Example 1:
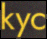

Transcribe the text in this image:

kyc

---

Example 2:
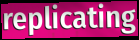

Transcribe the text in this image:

replicating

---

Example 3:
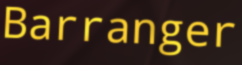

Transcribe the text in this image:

Barranger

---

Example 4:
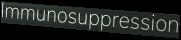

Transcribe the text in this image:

Immunosuppression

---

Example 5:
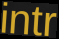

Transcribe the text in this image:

intr